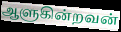
ஆளுகின்றவன்